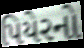
પિયેરનો